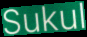
Sukul